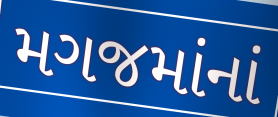
મગજમાંનાં